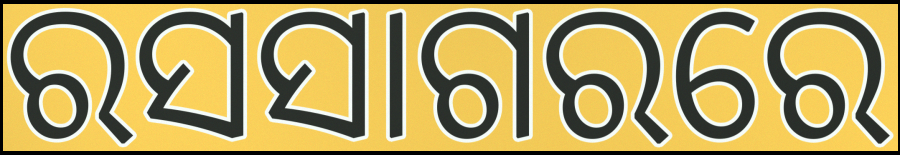
ରସସାଗରରେ